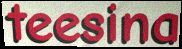
teesina